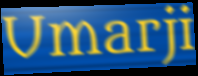
Umarji